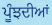
ਪੂੰਝਦੀਆਂ